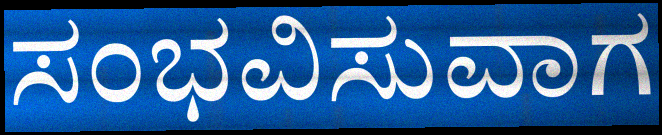
ಸಂಭವಿಸುವಾಗ